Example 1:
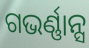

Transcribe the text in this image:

ଗଭର୍ଣ୍ଣାନ୍ସ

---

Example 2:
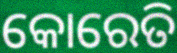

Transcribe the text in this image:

କୋରେତି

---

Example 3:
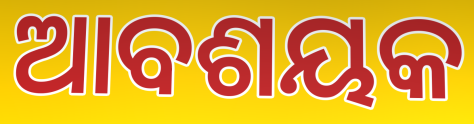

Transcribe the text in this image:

ଆବଶୟକ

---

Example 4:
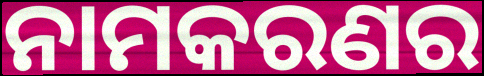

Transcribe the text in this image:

ନାମକରଣର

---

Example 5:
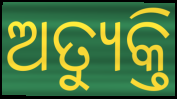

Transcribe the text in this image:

ଅତ୍ୟୁକ୍ତି